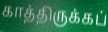
காத்திருக்கப்